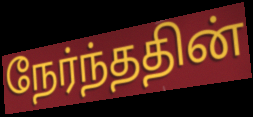
நேர்ந்ததின்